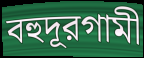
বহুদূরগামী